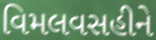
વિમલવસહીને